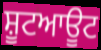
ਸ਼ੂਟਆਊਟ